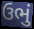
ઉભું